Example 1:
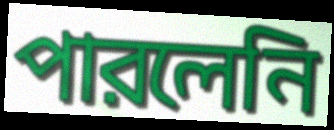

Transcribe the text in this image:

পারলেনি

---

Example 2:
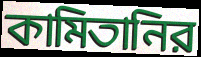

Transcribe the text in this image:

কামিতানির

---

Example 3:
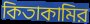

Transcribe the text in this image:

কিতাকামির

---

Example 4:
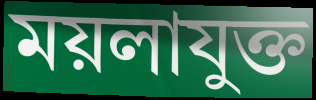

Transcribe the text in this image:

ময়লাযুক্ত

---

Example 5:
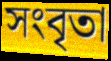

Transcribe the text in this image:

সংবৃতা